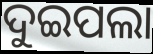
ଦୁଇପଲା